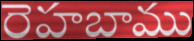
రెహబాము